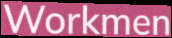
Workmen